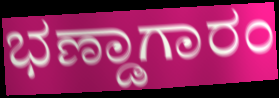
ಭಣ್ಡಾಗಾರಂ